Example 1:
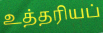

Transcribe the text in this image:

உத்தரியப்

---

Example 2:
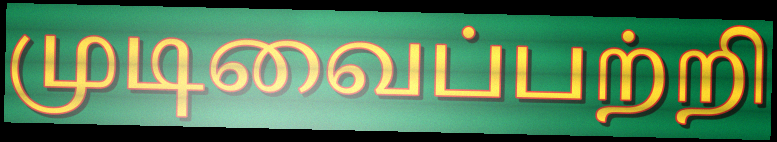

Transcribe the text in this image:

முடிவைப்பற்றி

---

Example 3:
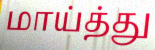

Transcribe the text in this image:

மாய்த்து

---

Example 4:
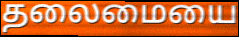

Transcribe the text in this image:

தலைமையை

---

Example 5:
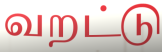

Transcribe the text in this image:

வறட்டு